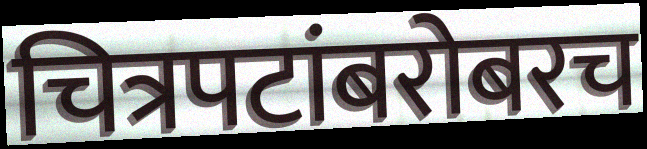
चित्रपटांबरोबरच